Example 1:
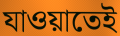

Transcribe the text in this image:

যাওয়াতেই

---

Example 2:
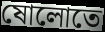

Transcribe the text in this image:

ষোলোতে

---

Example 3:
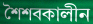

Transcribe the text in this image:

শৈশবকালীন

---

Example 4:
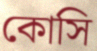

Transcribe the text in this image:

কোসি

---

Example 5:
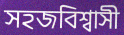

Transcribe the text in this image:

সহজবিশ্বাসী